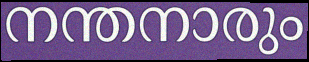
നന്തനാരും